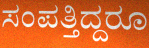
ಸಂಪತ್ತಿದ್ದರೂ